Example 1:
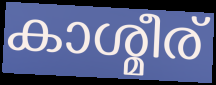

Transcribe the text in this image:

കാശ്മീര്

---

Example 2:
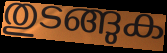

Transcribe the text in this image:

തുടങ്ങുക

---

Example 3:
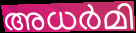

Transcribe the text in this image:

അധർമി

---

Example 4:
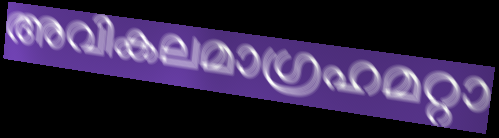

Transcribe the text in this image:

അവികലമാഗ്രഹമറ്റാ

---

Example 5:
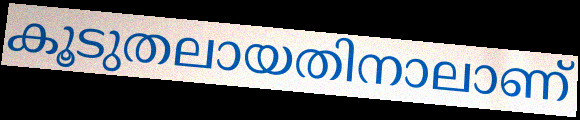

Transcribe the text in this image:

കൂടുതലായതിനാലാണ്